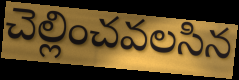
చెల్లించవలసిన